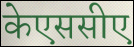
केएससीए